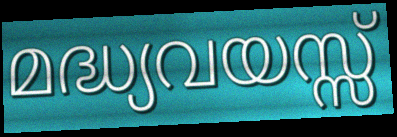
മദ്ധ്യവയസ്സ്